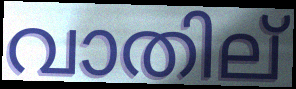
വാതില്